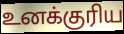
உனக்குரிய